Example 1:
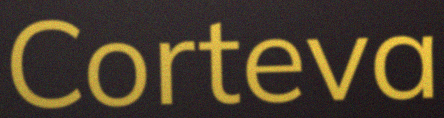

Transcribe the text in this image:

Corteva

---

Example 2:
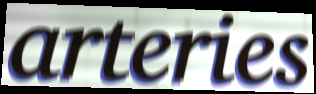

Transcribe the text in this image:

arteries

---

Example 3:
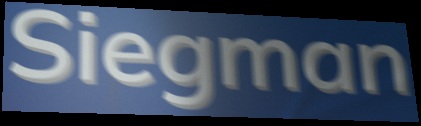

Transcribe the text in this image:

Siegman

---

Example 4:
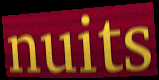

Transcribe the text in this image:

nuits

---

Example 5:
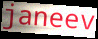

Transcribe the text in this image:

janeev